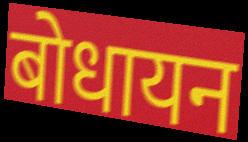
बोधायन